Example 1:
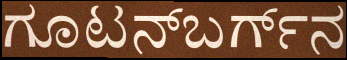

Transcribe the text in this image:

ಗೂಟನ್‌ಬರ್ಗ್‌ನ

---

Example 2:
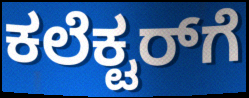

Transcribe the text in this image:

ಕಲೆಕ್ಟರ್‌ಗೆ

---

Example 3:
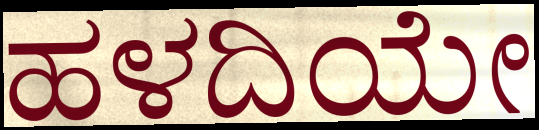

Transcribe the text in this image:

ಹಳದಿಯೇ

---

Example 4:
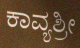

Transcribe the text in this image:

ಕಾವ್ಯಶ್ರೀ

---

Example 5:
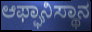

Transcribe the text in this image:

ಆಫ್ಘಾನಿಸ್ಥಾನ